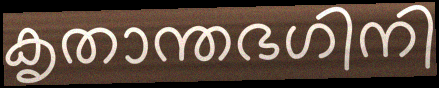
കൃതാന്തഭഗിനി